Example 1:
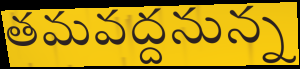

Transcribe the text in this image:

తమవద్దనున్న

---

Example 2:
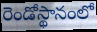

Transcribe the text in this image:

రెండోస్థానంలో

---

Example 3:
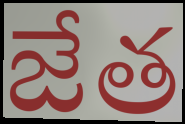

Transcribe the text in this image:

జేత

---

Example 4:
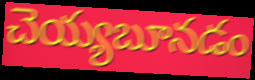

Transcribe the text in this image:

చెయ్యబూనడం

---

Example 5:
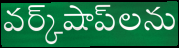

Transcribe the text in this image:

వర్క్‌షాప్‌లను